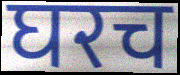
घरच